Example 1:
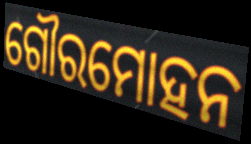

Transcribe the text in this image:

ଗୌରମୋହନ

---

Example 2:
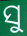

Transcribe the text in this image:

ସୁ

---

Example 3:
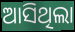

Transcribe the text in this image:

ଆସିଥିଲା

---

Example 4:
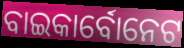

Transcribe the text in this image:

ବାଇକାର୍ବୋନେଟ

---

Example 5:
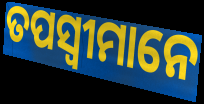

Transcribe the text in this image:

ତପସ୍ୱୀମାନେ